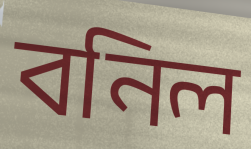
বনিল